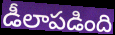
డీలాపడింది